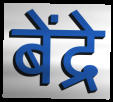
बेंद्रे